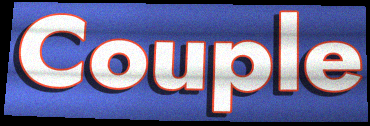
Couple